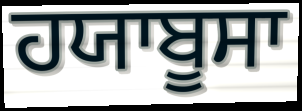
ਹਯਾਬੂਸਾ